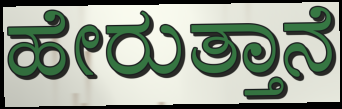
ಹೇರುತ್ತಾನೆ